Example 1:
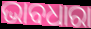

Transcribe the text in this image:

ଭାବଧାରା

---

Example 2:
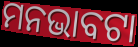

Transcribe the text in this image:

ମନଭାବଟା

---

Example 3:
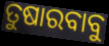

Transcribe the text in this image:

ତୁଷାରବାବୁ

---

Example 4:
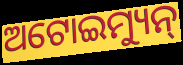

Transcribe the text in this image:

ଅଟୋଇମ୍ୟୁନ୍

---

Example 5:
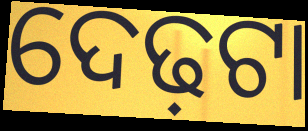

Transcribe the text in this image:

ଦେଢ଼ଟା